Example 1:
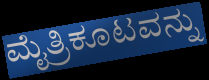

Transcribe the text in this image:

ಮೈತ್ರಿಕೂಟವನ್ನು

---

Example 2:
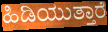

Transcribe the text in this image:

ಹಿಡಿಯುತ್ತಾರೆ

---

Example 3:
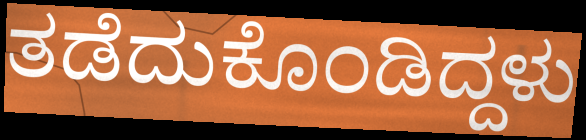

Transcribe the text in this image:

ತಡೆದುಕೊಂಡಿದ್ದಳು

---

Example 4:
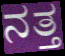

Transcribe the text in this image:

ನತ್ತ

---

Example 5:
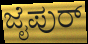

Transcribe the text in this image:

ಜೈಪುರ್